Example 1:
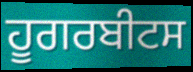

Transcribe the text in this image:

ਹੂਗਰਬੀਟਸ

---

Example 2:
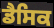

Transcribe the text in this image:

ਡੈਸਿਕ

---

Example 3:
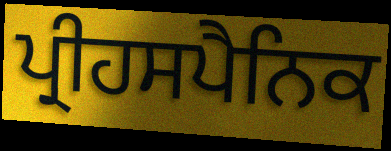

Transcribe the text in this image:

ਪ੍ਰੀਹਸਪੈਨਿਕ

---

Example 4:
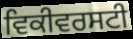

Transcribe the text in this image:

ਵਿਕੀਵਰਸਟੀ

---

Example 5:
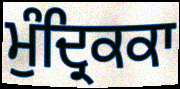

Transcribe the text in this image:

ਮੁੰਦ੍ਰਿਕਕਾ